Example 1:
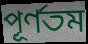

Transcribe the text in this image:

পূর্ণতম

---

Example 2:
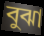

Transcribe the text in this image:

বুঝা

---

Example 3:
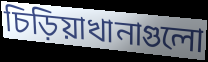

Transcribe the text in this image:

চিড়িয়াখানাগুলো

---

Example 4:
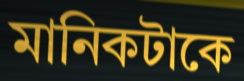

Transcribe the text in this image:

মানিকটাকে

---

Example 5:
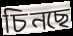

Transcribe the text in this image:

চিনছে